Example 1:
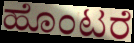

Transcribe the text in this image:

ಹೊಂಟರೆ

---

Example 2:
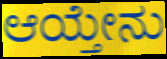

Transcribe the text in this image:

ಆಯ್ತೇನು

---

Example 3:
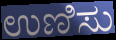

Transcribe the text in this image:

ಉಣಿಸು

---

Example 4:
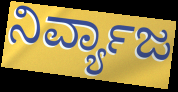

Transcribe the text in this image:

ನಿರ್ವ್ಯಾಜ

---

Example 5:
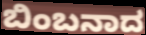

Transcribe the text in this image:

ಬಿಂಬನಾದ